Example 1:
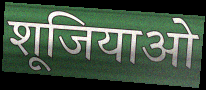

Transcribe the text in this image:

शूजियाओ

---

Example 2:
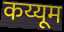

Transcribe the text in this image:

कय्यूम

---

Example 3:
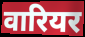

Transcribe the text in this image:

वारियर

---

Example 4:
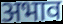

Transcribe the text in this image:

अभाव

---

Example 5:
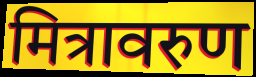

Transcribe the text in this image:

मित्रावरुण